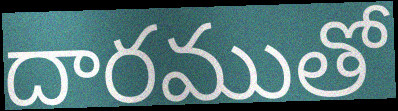
దారముతో